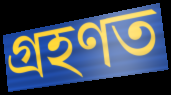
গ্ৰহণত